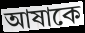
আষাকে